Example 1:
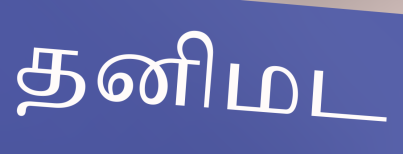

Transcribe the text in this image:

தனிமட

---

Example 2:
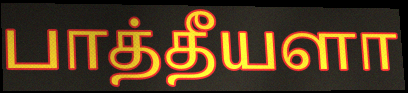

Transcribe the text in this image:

பாத்தீயளா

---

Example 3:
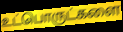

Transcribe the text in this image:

உட்பொருட்களை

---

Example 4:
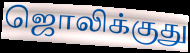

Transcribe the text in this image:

ஜொலிக்குது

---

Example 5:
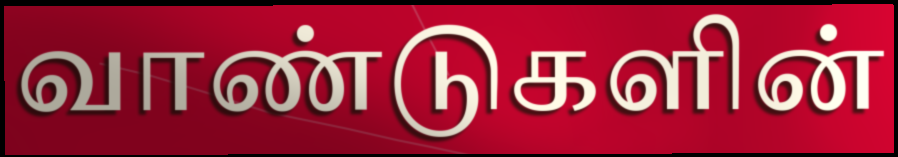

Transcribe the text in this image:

வாண்டுகளின்